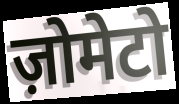
ज़ोमेटो